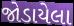
જોડાયેલા